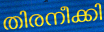
തിരനീക്കി